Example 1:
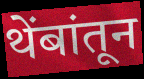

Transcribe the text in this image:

थेंबांतून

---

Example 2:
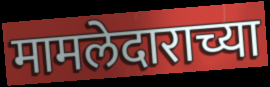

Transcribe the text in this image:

मामलेदाराच्या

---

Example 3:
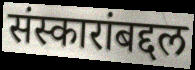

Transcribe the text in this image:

संस्कारांबद्दल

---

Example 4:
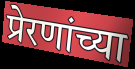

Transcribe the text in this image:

प्रेरणांच्या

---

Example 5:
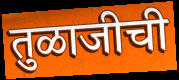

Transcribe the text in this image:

तुळाजीची